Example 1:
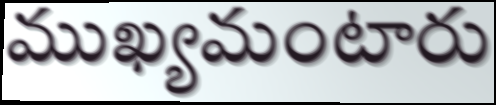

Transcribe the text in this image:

ముఖ్యమంటారు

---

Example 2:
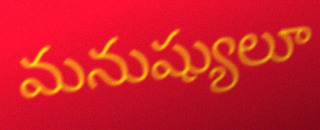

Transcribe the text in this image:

మనుష్యులూ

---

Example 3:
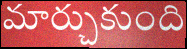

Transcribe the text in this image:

మార్చుకుంది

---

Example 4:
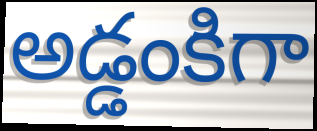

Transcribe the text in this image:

అడ్డంకిగా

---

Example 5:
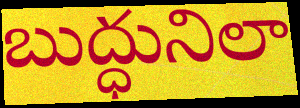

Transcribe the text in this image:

బుద్ధునిలా